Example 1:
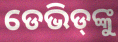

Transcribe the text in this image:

ଡେଭିଡ୍‌ଙ୍କୁ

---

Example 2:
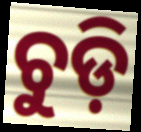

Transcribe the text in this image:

ଚୁଡ଼ି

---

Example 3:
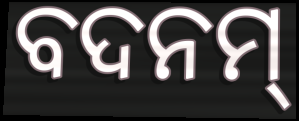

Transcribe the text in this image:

ବଦନମ୍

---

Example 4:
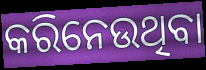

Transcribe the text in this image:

କରିନେଉଥିବା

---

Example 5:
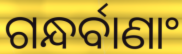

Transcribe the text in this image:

ଗନ୍ଧର୍ବାଣାଂ